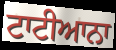
ਟਾਟੀਆਨਾ